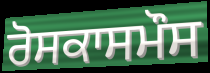
ਰੋਸਕਾਸਮੌਸ